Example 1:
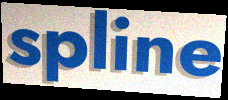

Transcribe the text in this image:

spline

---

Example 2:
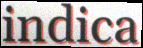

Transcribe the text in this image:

indica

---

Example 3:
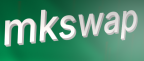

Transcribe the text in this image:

mkswap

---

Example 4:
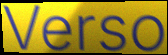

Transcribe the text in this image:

Verso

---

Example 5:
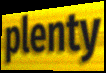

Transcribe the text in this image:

plenty